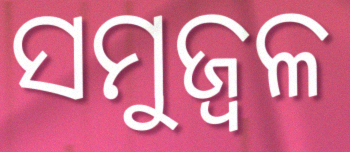
ସମୁଜ୍ୱଳ